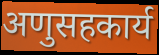
अणुसहकार्य